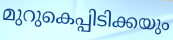
മുറുകെപ്പിടിക്കയും